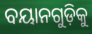
ବୟାନଗୁଡ଼ିକୁ